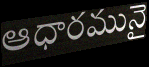
ఆధారమునై